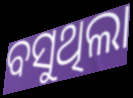
ବସୁଥିଲା